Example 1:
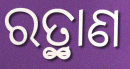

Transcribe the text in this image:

ରତ୍ର୍ଥାଣ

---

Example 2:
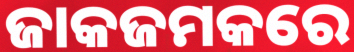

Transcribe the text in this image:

ଜାକଜମକରେ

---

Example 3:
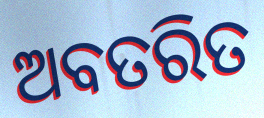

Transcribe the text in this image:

ଅବତରିତ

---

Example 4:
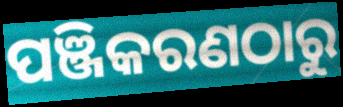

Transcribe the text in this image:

ପଞ୍ଜିକରଣଠାରୁ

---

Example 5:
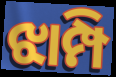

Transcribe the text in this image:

ଝାମ୍ପି